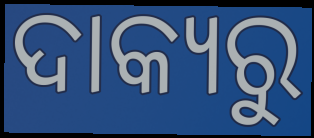
ଦାକ୍ୟରୁ